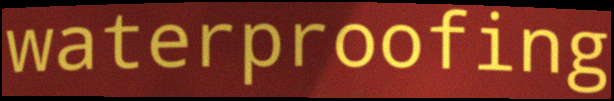
waterproofing